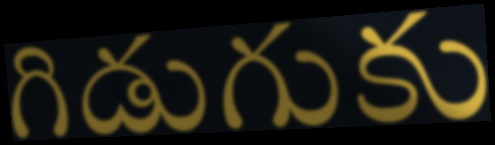
గిడుగుకు